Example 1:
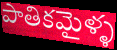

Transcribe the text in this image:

పాతికమైళ్ళ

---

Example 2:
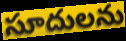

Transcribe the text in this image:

సూదులను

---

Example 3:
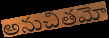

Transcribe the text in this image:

అనుచితమో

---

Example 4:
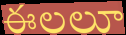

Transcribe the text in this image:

ఈలలూ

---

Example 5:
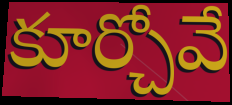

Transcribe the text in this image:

కూర్చోవే